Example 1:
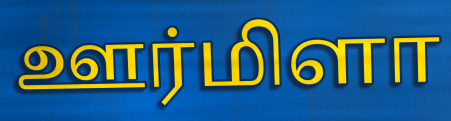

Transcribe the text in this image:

ஊர்மிளா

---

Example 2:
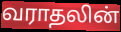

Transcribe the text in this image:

வராதலின்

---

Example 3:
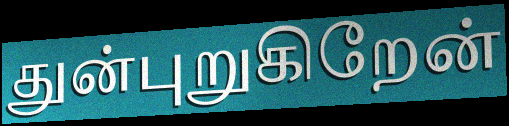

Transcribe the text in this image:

துன்புறுகிறேன்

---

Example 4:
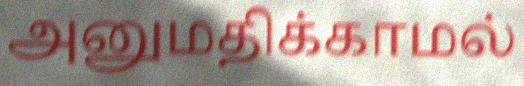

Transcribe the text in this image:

அனுமதிக்காமல்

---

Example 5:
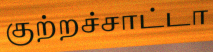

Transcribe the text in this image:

குற்றச்சாட்டா